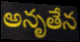
అనృతేన